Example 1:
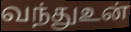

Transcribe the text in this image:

வந்துஉன்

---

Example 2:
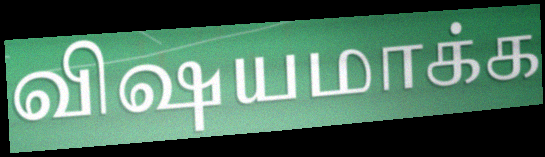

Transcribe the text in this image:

விஷயமாக்க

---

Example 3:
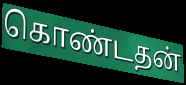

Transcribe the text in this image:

கொண்டதன்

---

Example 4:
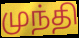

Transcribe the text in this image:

முந்தி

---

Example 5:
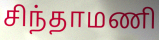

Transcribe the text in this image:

சிந்தாமணி